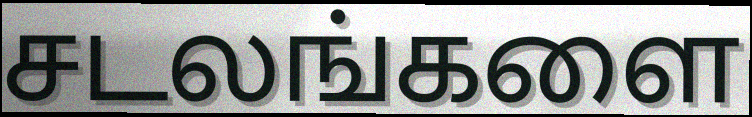
சடலங்களை